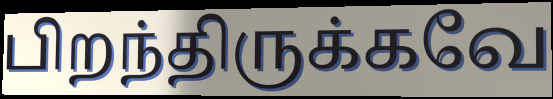
பிறந்திருக்கவே